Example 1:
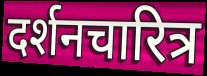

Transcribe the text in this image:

दर्शनचारित्र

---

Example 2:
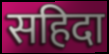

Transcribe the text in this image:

सहिदा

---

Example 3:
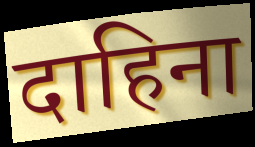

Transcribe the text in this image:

दाहिना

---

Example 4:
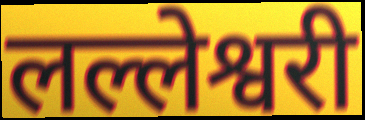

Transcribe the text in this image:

लल्लेश्वरी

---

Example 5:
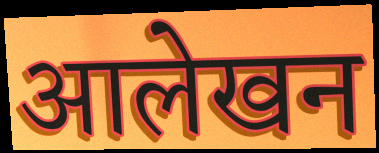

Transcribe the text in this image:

आलेखन